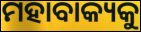
ମହାବାକ୍ୟକୁ